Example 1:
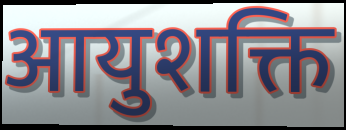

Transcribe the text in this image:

आयुशक्ति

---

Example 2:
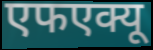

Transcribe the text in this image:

एफएक्यू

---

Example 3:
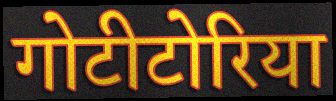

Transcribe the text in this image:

गोटीटोरिया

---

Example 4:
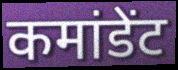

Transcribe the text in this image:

कमांडेंट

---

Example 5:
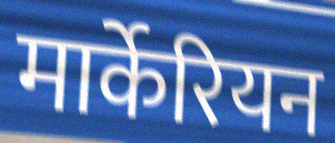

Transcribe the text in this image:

मार्केरियन